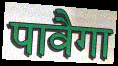
पावैगा